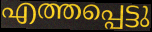
എത്തപ്പെട്ടു